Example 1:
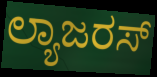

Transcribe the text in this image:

ಲ್ಯಾಜರಸ್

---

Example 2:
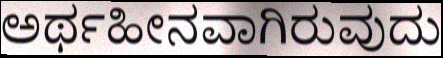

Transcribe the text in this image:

ಅರ್ಥಹೀನವಾಗಿರುವುದು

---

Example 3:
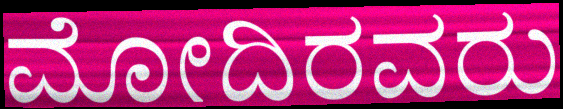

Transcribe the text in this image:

ಮೋದಿರವರು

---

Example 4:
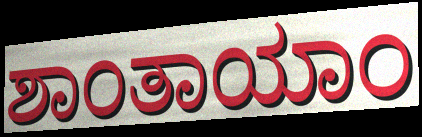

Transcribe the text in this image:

ಶಾಂತಾಯಾಂ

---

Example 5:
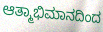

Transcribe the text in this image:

ಆತ್ಮಾಭಿಮಾನದಿಂದ